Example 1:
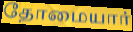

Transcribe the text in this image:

தோமையார்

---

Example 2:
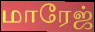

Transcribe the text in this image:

மாரேஜ்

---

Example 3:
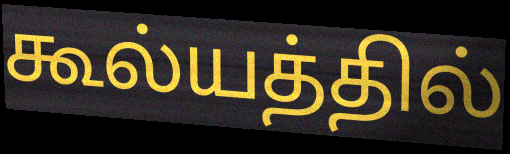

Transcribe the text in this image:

கூல்யத்தில்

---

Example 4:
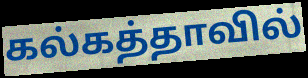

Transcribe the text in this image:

கல்கத்தாவில்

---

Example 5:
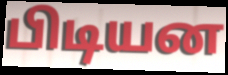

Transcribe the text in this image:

பிடியன